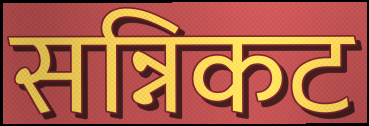
सन्निकट